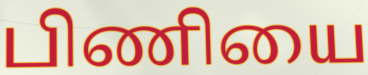
பிணியை